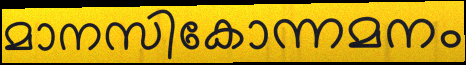
മാനസികോന്നമനം